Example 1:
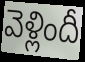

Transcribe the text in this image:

వెళ్లిందీ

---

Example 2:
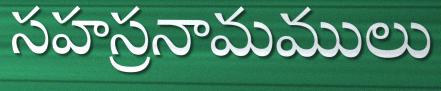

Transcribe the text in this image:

సహస్రనామములు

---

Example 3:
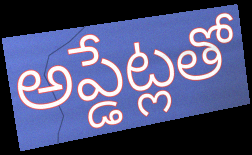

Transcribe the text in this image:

అప్డేట్లతో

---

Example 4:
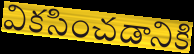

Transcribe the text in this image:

వికసించడానికి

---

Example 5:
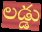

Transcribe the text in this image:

లడ్డు